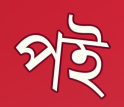
পই